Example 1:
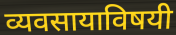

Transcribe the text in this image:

व्यवसायाविषयी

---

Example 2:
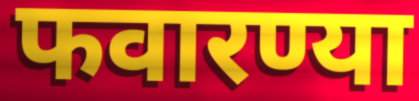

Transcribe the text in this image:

फवारण्या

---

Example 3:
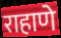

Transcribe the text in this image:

राहाणे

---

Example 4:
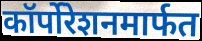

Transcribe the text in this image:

कॉर्पोरेशनमार्फत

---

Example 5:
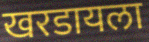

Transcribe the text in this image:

खरडायला